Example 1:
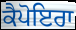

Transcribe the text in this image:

ਕੈਪੋਇਰਾ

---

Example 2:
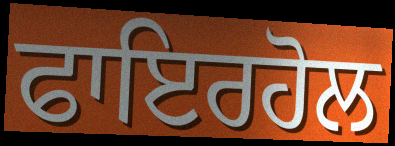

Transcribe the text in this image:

ਫਾਇਰਹੋਲ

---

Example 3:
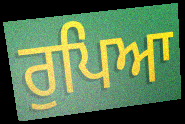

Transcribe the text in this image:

ਰੁਪਿਆ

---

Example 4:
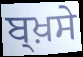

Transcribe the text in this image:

ਬ੍ਖ਼ਸੇ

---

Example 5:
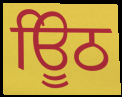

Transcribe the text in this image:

ਊਿਠ